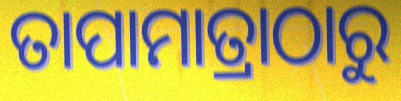
ତାପାମାତ୍ରାଠାରୁ